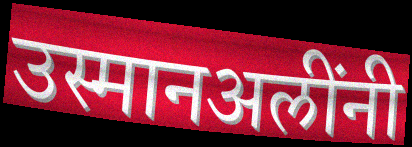
उस्मानअलींनी